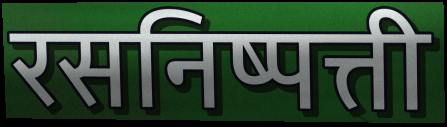
रसनिष्पत्ती